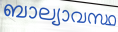
ബാല്യാവസ്ഥ